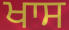
ਖਾਸ